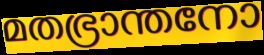
മതഭ്രാന്തനോ